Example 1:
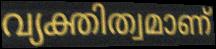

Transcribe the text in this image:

വ്യക്തിത്വമാണ്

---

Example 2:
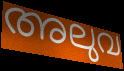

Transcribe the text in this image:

അലുവ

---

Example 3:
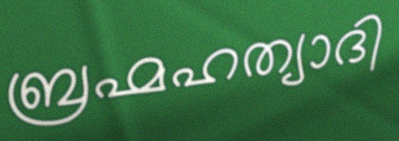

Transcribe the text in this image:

ബ്രഹ്മഹത്യാദി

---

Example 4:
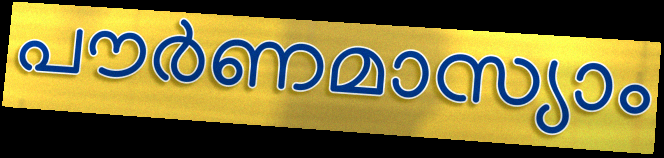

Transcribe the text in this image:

പൗർണമാസ്യാം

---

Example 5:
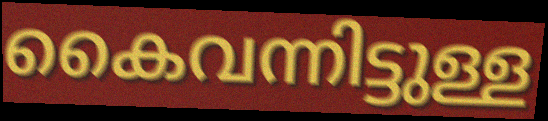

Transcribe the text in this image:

കൈവന്നിട്ടുള്ള